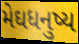
મેઘધનુષ્ય